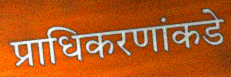
प्राधिकरणांकडे